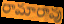
రామారావు